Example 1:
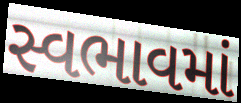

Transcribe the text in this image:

સ્વભાવમાં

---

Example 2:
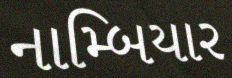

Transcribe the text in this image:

નામ્બિયાર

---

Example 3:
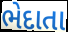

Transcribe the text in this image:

ભેદાતા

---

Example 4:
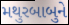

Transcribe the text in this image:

મથુરબાબુને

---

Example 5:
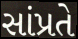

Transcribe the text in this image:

સાંપ્રતે